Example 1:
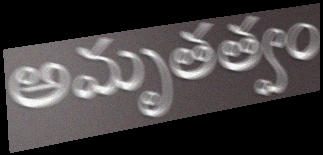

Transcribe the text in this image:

అమృతత్వం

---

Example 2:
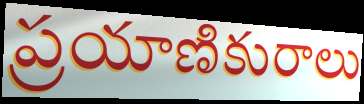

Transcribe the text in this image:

ప్రయాణికురాలు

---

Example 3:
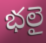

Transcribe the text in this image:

భలై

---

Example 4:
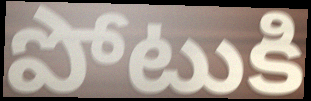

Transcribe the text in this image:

పోటుకి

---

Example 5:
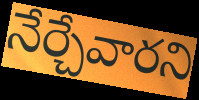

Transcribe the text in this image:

నేర్చేవారని